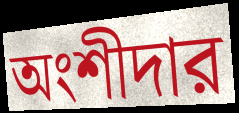
অংশীদার